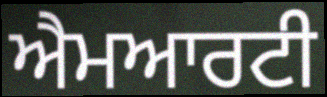
ਐਮਆਰਟੀ